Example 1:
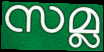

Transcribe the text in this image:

സമ്ല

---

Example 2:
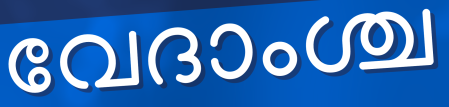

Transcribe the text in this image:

വേദാംശ്ച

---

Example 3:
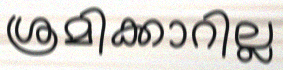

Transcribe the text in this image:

ശ്രമിക്കാറില്ല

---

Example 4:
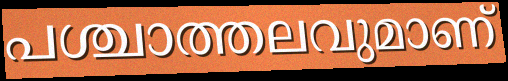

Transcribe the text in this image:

പശ്ചാത്തലവുമാണ്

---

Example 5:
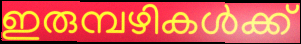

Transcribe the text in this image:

ഇരുമ്പഴികൾക്ക്